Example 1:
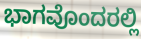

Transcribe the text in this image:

ಭಾಗವೊಂದರಲ್ಲಿ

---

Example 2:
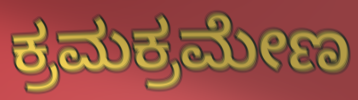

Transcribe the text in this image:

ಕ್ರಮಕ್ರಮೇಣ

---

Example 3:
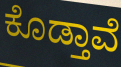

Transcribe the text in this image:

ಕೊಡ್ತಾವೆ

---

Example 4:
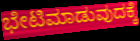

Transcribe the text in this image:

ಭೇಟಿಮಾಡುವುದಕ್ಕೆ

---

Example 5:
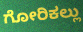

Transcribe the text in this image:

ಗೋರಿಕಲ್ಲು